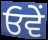
ਓਵੇਂ